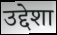
उद्देशा